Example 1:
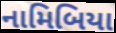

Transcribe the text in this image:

નામિબિયા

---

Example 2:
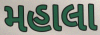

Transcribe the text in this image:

મહાલા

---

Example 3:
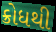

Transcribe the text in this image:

ક્રોધથી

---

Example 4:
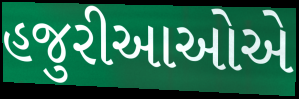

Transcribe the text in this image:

હજુરીઆઓએ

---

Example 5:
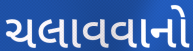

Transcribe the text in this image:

ચલાવવાનો